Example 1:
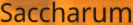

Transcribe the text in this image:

Saccharum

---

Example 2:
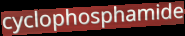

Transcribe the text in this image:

cyclophosphamide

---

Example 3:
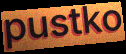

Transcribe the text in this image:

pustko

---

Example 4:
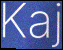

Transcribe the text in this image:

Kaj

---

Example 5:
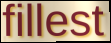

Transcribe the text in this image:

fillest